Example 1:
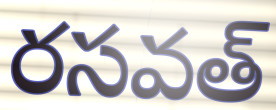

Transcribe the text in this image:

రసవత్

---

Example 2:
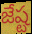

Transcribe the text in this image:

జేష్ట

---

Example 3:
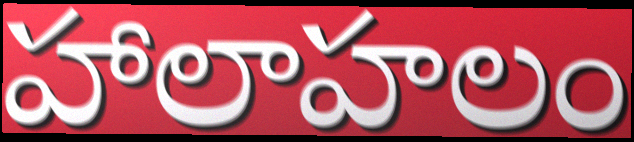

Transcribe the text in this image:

హాలాహలం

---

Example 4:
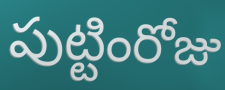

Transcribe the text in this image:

పుట్టింరోజు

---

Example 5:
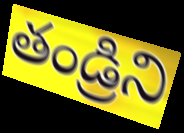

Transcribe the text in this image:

తండ్రిని